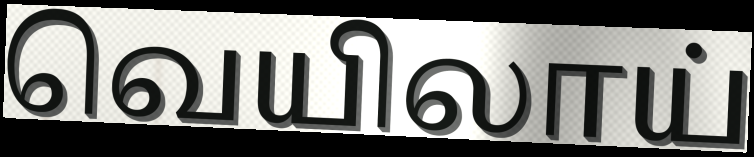
வெயிலாய்